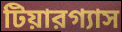
টিয়ারগ্যাস